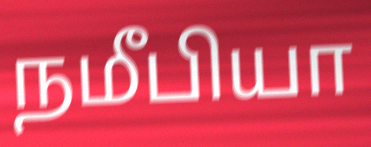
நமீபியா